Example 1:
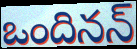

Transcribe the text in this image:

ఒందినన్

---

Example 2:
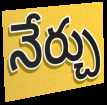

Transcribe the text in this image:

నేర్చు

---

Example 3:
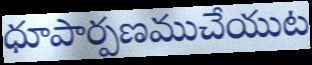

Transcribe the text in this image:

ధూపార్పణముచేయుట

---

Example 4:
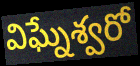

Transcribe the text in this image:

విఘ్నేశ్వరో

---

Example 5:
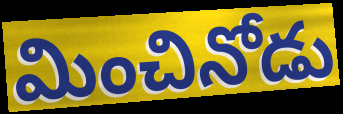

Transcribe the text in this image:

మించినోడు